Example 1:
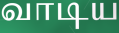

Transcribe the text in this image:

வாடிய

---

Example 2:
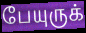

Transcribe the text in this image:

பேயுருக்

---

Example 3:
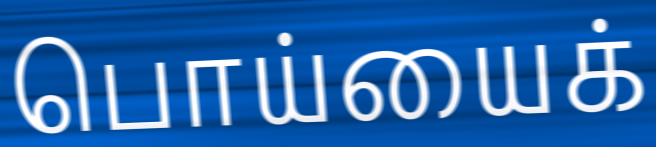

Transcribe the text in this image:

பொய்யைக்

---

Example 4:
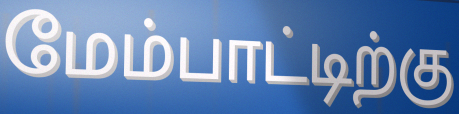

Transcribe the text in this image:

மேம்பாட்டிற்கு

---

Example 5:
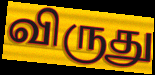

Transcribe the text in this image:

விருது